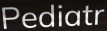
Pediatr